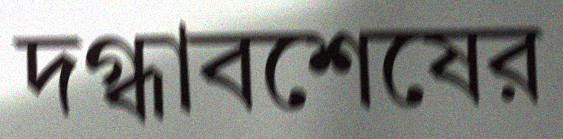
দগ্ধাবশেষের